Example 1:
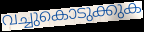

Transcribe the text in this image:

വച്ചുകൊടുക്കുക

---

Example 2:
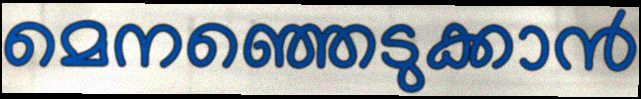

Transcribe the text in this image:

മെനഞ്ഞെടുക്കാൻ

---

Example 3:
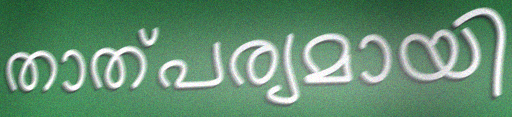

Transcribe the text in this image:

താത്പര്യമായി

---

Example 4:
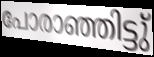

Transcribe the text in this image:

പോരാഞ്ഞിട്ടു്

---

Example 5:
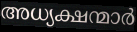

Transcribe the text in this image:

അധ്യക്ഷന്മാർ